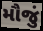
મૌજું